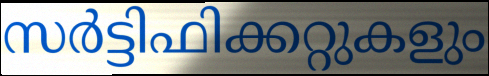
സർട്ടിഫിക്കറ്റുകളും